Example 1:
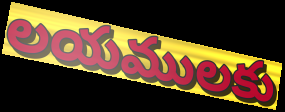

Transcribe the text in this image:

లయములకు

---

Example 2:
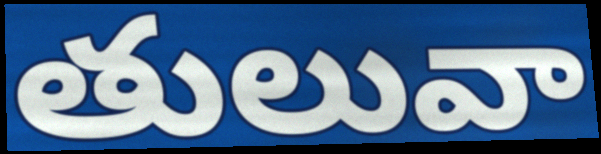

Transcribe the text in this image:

తులువా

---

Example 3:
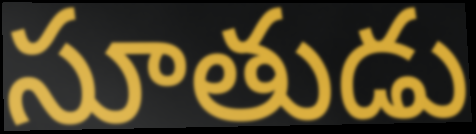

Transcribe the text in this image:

సూతుడు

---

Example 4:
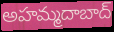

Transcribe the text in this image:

అహమ్మదాబాద్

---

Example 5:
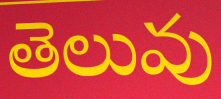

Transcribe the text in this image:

తెలువు